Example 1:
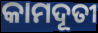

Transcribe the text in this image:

କାମଦୂତୀ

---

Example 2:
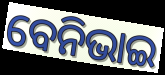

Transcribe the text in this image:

ବେନିଭାଇ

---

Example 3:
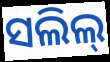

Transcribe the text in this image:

ସଲିଲ୍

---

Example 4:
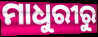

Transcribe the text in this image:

ମାଧୁରୀରୁ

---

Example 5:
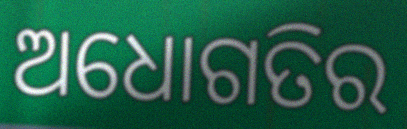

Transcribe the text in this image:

ଅଧୋଗତିର